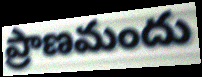
ప్రాణమందు